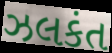
ઝલકંત